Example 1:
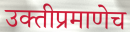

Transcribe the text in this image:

उक्तीप्रमाणेच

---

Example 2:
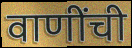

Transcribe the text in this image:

वाणींची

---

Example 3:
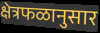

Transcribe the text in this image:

क्षेत्रफळानुसार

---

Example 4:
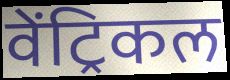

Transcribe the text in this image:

वेंट्रिकल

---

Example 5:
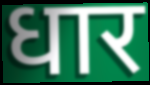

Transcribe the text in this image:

धार